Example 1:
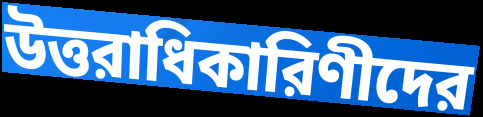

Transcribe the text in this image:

উত্তরাধিকারিণীদের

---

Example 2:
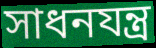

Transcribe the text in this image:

সাধনযন্ত্র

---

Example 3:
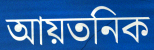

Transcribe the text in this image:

আয়তনিক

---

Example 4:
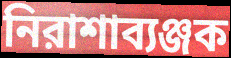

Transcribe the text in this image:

নিরাশাব্যঞ্জক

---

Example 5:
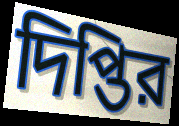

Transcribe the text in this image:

দিপ্তির